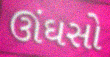
ઊંઘસો